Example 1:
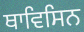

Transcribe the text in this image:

ਥਾਵਿਸਿਨ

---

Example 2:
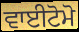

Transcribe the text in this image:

ਵਾਈਟੋਮੋ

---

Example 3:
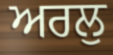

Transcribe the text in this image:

ਅਰਲੁ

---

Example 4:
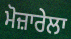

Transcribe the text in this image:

ਮੋਜ਼ਾਰੇਲਾ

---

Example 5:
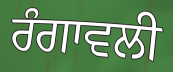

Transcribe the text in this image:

ਰੰਗਾਵਲੀ